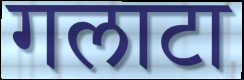
गलाटा